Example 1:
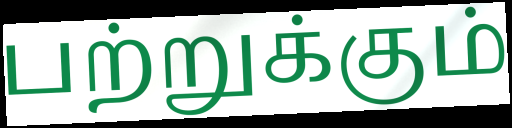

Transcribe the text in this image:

பற்றுக்கும்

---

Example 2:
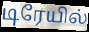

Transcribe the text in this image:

டிரேயில்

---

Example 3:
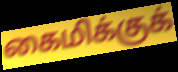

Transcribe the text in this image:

கைமிக்குக்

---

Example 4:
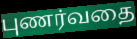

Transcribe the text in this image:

புணர்வதை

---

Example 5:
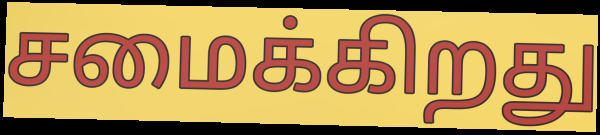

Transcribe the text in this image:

சமைக்கிறது